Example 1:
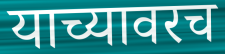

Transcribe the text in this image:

याच्यावरच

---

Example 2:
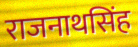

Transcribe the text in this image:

राजनाथसिंह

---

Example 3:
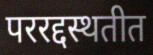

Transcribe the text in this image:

पररद्दस्थतीत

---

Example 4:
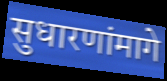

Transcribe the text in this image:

सुधारणांमागे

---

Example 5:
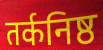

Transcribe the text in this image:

तर्कनिष्ठ